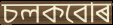
চলকবোৰ